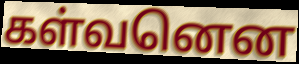
கள்வனென